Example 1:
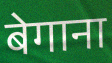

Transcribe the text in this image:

बेगाना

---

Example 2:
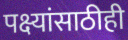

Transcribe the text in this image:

पक्ष्यांसाठीही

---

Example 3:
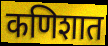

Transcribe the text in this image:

कणिशात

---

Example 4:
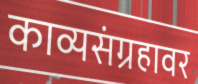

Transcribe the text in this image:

काव्यसंग्रहावर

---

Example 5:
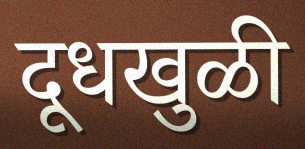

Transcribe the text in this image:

दूधखुळी